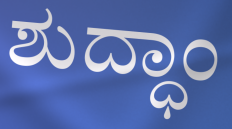
ಶುದ್ಧಾಂ